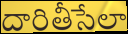
దారితీసేలా